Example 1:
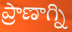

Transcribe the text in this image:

ప్రాణాగ్ని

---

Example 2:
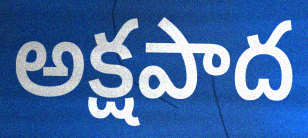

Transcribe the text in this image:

అక్షపాద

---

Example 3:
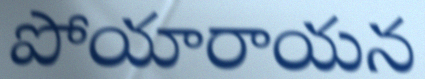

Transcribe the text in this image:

పోయారాయన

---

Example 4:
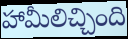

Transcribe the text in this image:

హామీలిచ్చింది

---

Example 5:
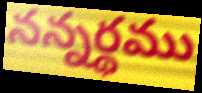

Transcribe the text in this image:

నన్నర్థము